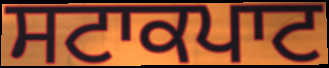
ਸਟਾਕਪਾਟ